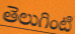
తెలుగింటి